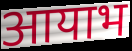
आयाभ